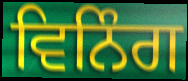
ਵਿਨਿੰਗ